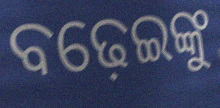
ବଢ଼େଇଙ୍କୁ